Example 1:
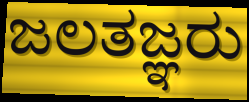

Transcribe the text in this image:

ಜಲತಜ್ಞರು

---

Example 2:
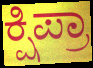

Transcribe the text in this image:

ಕ್ಷಿಪ್ರಾ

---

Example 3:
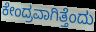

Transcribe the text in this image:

ಕೇಂದ್ರವಾಗಿತ್ತೆಂದು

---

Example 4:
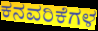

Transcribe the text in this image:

ಕನವರಿಕೆಗಳ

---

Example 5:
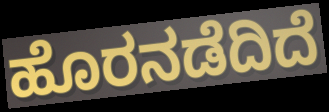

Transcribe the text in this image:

ಹೊರನಡೆದಿದೆ